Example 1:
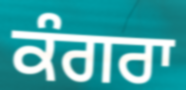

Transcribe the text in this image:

ਕੰਗਰਾ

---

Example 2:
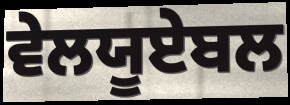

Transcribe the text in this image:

ਵੇਲਯੂਏਬਲ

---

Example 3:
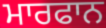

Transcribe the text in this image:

ਮਾਰਫਾਨ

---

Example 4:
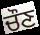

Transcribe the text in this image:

ਚੌਣ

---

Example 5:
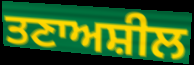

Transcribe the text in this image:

ਤਣਾਅਸ਼ੀਲ